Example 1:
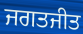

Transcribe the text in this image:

ਜਗਤਜੀਤ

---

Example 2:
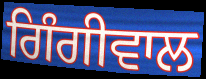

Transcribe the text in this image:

ਗਿੰਗੀਵਾਲ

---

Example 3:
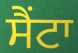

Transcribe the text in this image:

ਸੈਂਟਾ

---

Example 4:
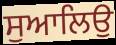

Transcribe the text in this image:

ਸੁਆਲਿਉ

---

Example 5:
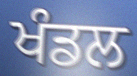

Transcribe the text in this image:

ਖੰਡਲ